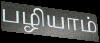
பழியாம்